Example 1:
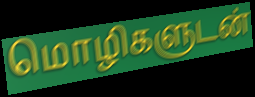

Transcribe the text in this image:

மொழிகளுடன்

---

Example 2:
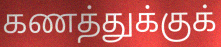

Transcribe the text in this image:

கணத்துக்குக்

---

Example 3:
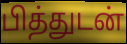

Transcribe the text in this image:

பித்துடன்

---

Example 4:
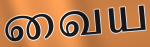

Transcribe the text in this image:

வைய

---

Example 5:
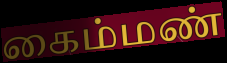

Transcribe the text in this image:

கைம்மண்